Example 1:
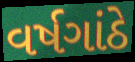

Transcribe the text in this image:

વર્ષગાંઠે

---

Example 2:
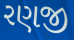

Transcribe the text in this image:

રણજી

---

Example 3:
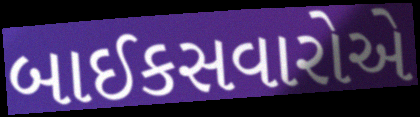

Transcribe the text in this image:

બાઈકસવારોએ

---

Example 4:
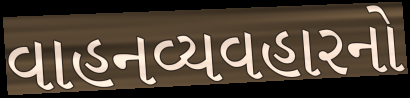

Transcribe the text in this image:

વાહનવ્યવહારનો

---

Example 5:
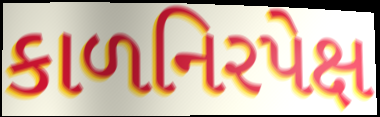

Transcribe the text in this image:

કાળનિરપેક્ષ